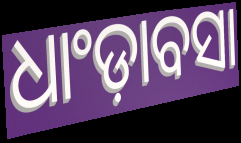
ଧାଂଡ଼ାବସା